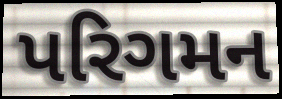
પરિગમન